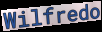
Wilfredo